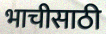
भाचीसाठी